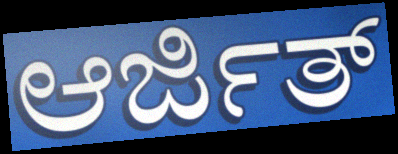
ಆರ್ಜಿತ್